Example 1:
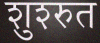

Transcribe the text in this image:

शुश्रुत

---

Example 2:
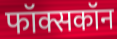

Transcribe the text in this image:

फॉक्सकॉन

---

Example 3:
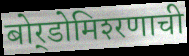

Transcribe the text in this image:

बोर्डोमिश्रणाची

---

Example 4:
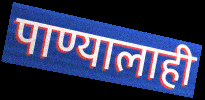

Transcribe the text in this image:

पाण्यालाही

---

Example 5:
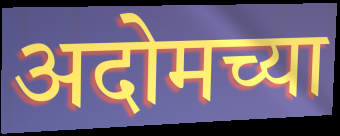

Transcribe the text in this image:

अदोमच्या